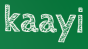
kaayi